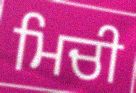
ਮਿਚੀ